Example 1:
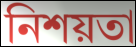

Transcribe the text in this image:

নিশয়তা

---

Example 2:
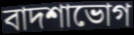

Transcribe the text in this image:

বাদশাভোগ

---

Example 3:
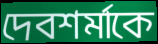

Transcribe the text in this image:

দেবশর্মাকে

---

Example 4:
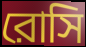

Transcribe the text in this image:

রোসি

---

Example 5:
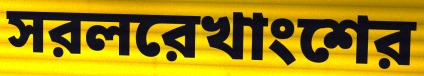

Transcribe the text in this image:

সরলরেখাংশের